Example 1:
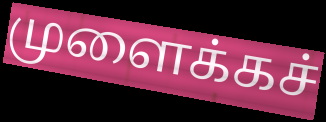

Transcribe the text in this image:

முளைக்கச்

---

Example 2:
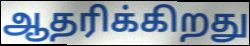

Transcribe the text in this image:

ஆதரிக்கிறது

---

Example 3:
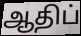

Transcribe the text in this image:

ஆதிப்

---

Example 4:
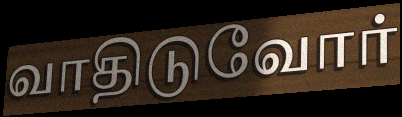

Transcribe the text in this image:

வாதிடுவோர்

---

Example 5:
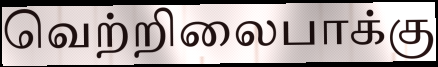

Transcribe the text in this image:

வெற்றிலைபாக்கு